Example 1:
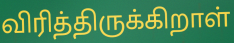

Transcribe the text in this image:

விரித்திருக்கிறாள்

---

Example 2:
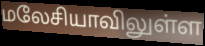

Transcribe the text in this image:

மலேசியாவிலுள்ள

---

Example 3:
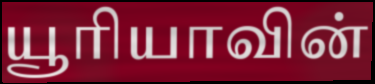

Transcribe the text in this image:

யூரியாவின்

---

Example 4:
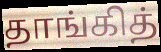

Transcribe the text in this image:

தாங்கித்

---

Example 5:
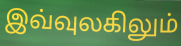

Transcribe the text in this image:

இவ்வுலகிலும்